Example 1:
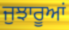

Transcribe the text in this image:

ਜੁਝਾਰੂਆਂ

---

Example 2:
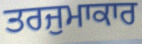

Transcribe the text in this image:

ਤਰਜੁਮਾਕਾਰ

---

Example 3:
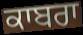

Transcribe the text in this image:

ਕਾਬਰਾ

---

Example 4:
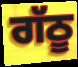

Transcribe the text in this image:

ਗੱਠੂ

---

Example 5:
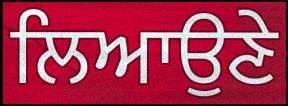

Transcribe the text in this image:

ਲਿਆਉਣੇ